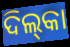
ଦିଲ୍‌କା